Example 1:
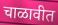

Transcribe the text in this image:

चाळावीत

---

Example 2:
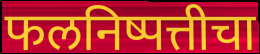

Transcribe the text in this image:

फलनिष्पत्तीचा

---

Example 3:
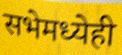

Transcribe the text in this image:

सभेमध्येही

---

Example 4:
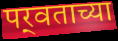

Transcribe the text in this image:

पर्वताच्या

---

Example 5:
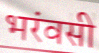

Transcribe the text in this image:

भरंवसी